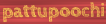
pattupoochi